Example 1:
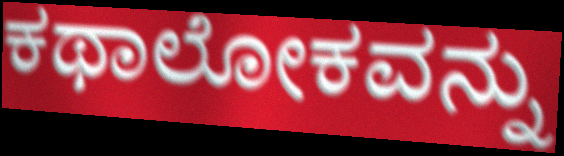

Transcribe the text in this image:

ಕಥಾಲೋಕವನ್ನು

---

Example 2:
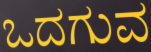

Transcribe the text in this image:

ಒದಗುವ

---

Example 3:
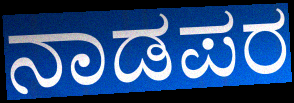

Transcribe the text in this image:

ನಾಡಪರ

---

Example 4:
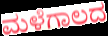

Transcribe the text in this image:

ಮಳೆಗಾಲದ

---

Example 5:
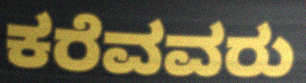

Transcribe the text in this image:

ಕರೆವವರು